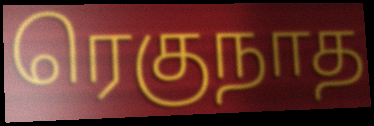
ரெகுநாத